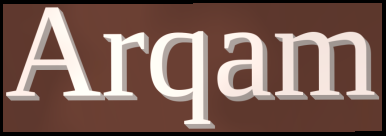
Arqam